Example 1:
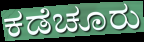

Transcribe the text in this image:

ಕಡೆಚೂರು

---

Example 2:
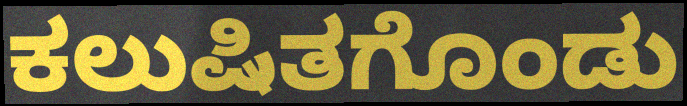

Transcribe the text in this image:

ಕಲುಷಿತಗೊಂಡು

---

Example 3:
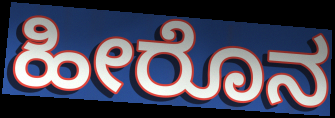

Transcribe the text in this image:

ಹೀರೊನ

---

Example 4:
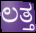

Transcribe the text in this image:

ಲತ್ತ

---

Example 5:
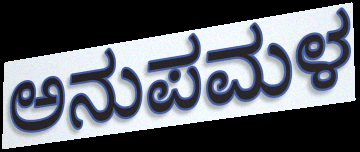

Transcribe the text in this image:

ಅನುಪಮಳ